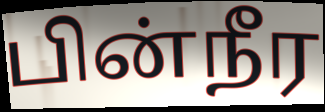
பின்நீர